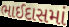
ભાઈદાસમાં